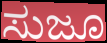
ಸುಜೂ